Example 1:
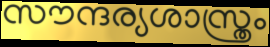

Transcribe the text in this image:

സൗന്ദര്യശാസ്ത്രം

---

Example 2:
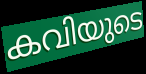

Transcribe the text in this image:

കവിയുടെ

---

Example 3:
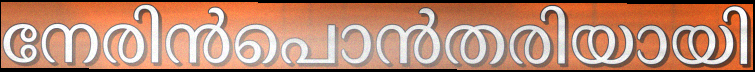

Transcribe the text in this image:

നേരിൻപൊൻതരിയായി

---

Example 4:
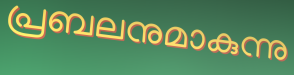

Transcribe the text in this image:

പ്രബലനുമാകുന്നു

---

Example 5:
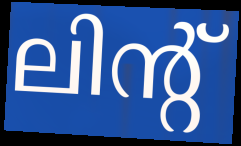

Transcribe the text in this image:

ലിന്റ്